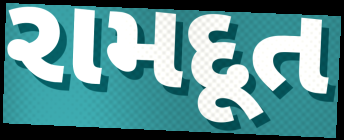
રામદૂત